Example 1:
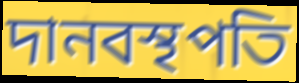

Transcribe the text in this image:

দানবস্থপতি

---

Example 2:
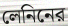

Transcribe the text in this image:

লেনিনের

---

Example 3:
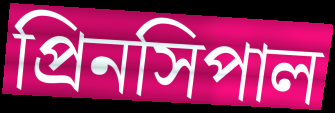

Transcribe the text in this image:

প্রিনসিপাল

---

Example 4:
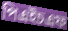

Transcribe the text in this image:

পিএইচএফ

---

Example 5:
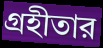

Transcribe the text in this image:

গ্রহীতার